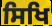
ਸਿਖਿ